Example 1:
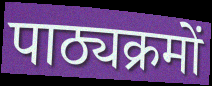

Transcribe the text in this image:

पाठ्यक्रमों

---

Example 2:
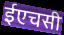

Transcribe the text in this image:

ईएचसी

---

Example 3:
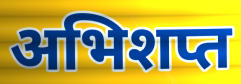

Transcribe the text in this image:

अभिशप्त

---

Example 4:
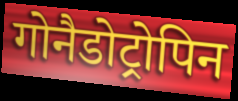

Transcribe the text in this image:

गोनैडोट्रोपिन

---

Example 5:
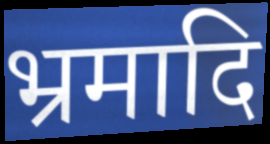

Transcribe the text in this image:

भ्रमादि